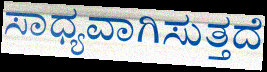
ಸಾಧ್ಯವಾಗಿಸುತ್ತದೆ